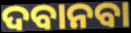
ଦବାନବା